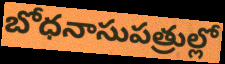
బోధనాసుపత్రుల్లో